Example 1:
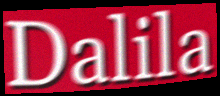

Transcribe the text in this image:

Dalila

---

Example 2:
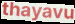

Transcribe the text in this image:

thayavu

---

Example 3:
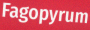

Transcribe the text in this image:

Fagopyrum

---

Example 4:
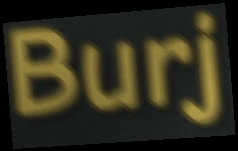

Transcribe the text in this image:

Burj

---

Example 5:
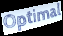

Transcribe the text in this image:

Optimal